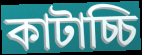
কাটাচ্চি